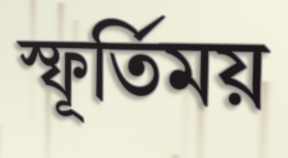
স্ফূর্তিময়